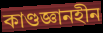
কাণ্ডজ্ঞানহীন